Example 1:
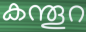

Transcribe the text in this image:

കന്തൂറ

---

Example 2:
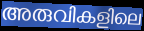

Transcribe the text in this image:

അരുവികളിലെ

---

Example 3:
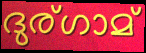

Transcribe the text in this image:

ദുര്ഗാമ്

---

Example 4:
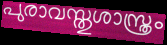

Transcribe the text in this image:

പുരാവസ്തുശാസ്ത്രം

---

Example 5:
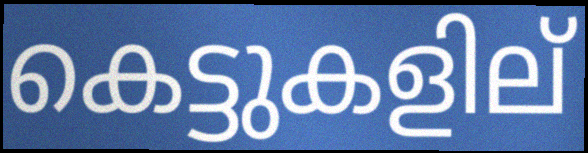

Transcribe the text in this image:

കെട്ടുകളില്